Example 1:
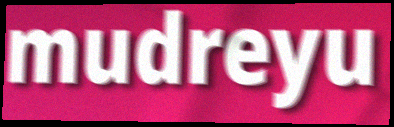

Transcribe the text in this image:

mudreyu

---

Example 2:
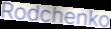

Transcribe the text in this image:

Rodchenko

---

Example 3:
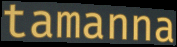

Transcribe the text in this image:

tamanna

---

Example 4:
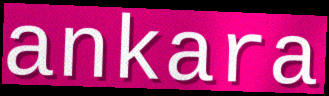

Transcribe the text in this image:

ankara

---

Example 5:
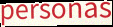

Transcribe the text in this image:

personas